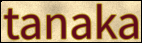
tanaka